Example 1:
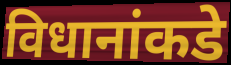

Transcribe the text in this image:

विधानांकडे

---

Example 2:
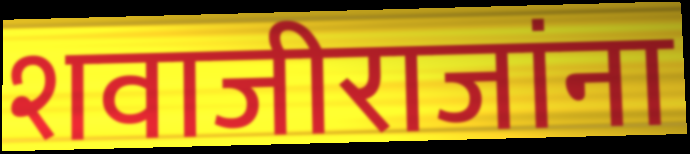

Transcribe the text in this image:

शवाजीराजांना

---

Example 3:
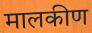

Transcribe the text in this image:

मालकीण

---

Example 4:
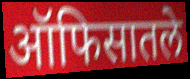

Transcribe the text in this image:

ऑफिसातले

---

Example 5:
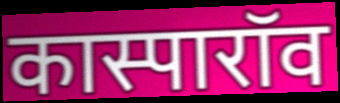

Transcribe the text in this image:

कास्पारॉव